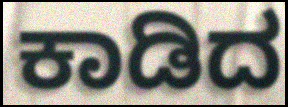
ಕಾಡಿದ